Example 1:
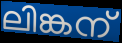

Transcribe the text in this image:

ലിങ്കന്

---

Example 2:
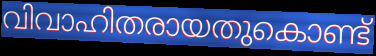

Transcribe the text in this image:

വിവാഹിതരായതുകൊണ്ട്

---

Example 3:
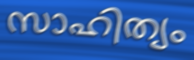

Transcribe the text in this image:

സാഹിത്യം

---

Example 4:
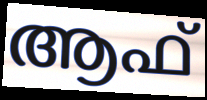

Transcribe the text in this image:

ആഫ്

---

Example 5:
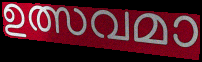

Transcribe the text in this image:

ഉത്സവമാ